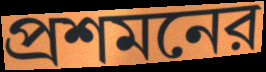
প্রশমনের